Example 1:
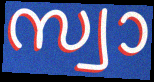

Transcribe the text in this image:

സ്വാ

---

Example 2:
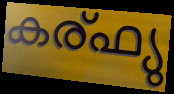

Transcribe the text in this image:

കര്ഫ്യു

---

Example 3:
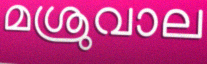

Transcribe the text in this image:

മശ്രുവാല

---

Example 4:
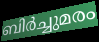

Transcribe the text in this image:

ബിർച്ചുമരം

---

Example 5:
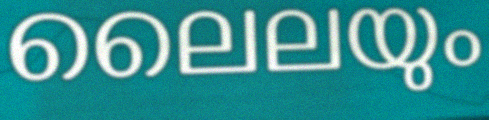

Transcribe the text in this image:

ലൈലയും